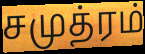
சமுத்ரம்